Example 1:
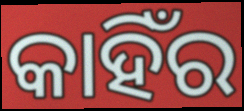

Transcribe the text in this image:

କାହିଁର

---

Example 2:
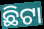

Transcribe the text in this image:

ଛିଟା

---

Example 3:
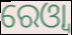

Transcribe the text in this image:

ରେଓ୍ବା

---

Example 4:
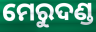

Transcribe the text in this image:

ମେରୁଦଣ୍ଡ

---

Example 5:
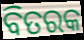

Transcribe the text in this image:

ବିତରକ